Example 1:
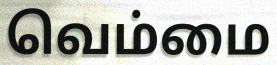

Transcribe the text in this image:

வெம்மை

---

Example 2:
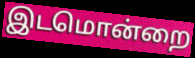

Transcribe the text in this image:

இடமொன்றை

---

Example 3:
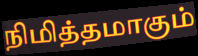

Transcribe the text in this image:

நிமித்தமாகும்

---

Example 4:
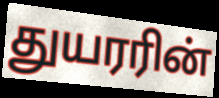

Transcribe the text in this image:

துயரரின்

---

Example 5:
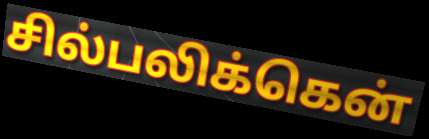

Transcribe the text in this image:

சில்பலிக்கென்